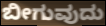
ಬೀಗುವುದು